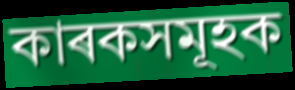
কাৰকসমূহক